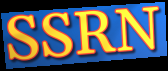
SSRN